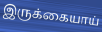
இருக்கையாய்